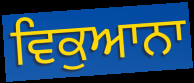
ਵਿਕੁਆਨਾ